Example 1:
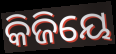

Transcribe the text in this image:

କିଜିୟେ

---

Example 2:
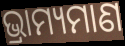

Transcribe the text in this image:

ଭ୍ରାମ୍ୟମାଣ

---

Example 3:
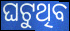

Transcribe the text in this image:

ଘଟୁଥିବ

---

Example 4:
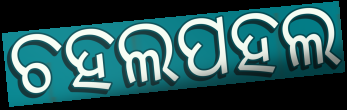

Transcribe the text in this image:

ଚହଲପହଲ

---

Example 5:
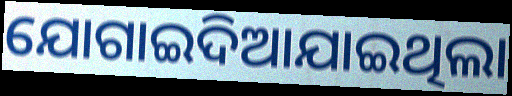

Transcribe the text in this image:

ଯୋଗାଇଦିଆଯାଇଥିଲା